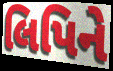
લિપિને